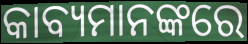
କାବ୍ୟମାନଙ୍କରେ